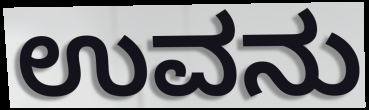
ಉವನು